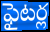
ఫైటర్ల